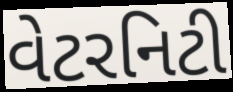
વેટરનિટી